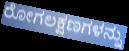
ರೋಗಲಕ್ಷಣಗಳನ್ನು